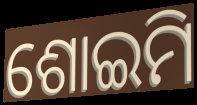
ଶୋଇମି